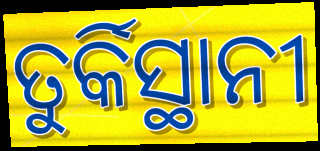
ତୁର୍କିସ୍ଥାନୀ